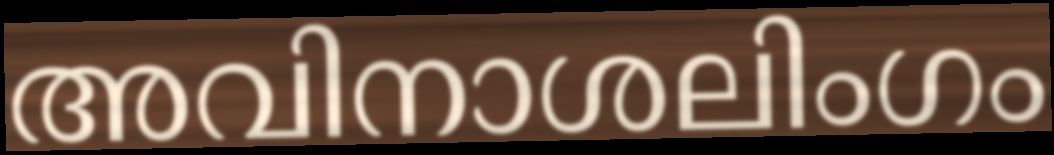
അവിനാശലിംഗം